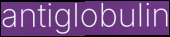
antiglobulin